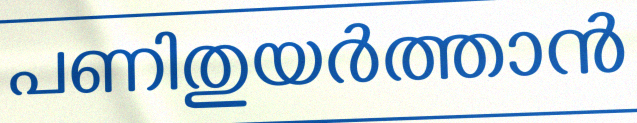
പണിതുയർത്താൻ